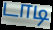
டாடி